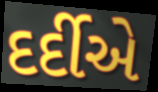
દર્દીએ